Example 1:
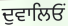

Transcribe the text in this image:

ਦੁਵਾਲਿਓਂ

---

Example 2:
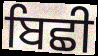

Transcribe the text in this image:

ਬਿਛੀ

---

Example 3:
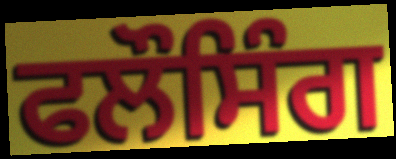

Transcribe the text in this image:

ਫਲੌਸਿੰਗ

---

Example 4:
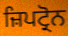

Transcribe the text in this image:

ਜ਼ਿਪਟ੍ਰੋਨ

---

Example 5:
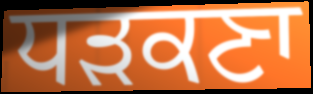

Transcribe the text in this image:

ਧੜਕਣਾ